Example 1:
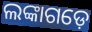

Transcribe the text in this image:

ଲଙ୍କାଗଡ଼େ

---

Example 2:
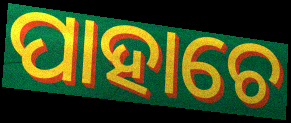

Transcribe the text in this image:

ପାହାଚେ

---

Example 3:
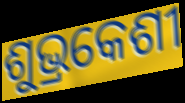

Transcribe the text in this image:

ଶୁଭ୍ରକେଶୀ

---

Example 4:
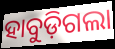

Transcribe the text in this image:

ହାବୁଡ଼ିଗଲା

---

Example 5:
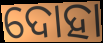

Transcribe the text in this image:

ଦୋହା